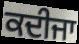
ਕਦੀਜਾ